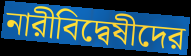
নারীবিদ্বেষীদের